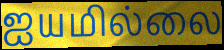
ஐயமில்லை